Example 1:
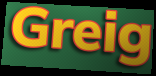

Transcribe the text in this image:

Greig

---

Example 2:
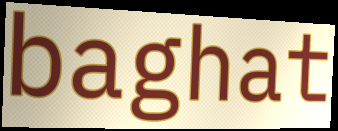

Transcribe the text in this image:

baghat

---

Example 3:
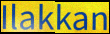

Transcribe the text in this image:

Ilakkan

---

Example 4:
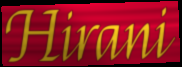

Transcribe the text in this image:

Hirani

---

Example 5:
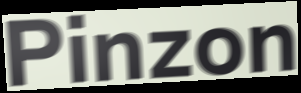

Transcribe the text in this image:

Pinzon